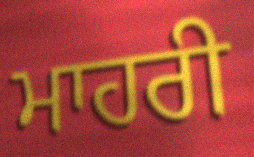
ਮਾਹਰੀ